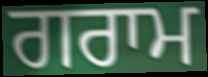
ਗਰਾਮ